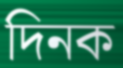
দিনক